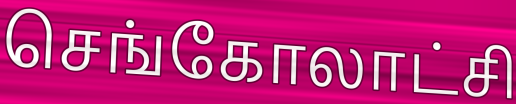
செங்கோலாட்சி